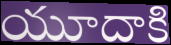
యూదాకి